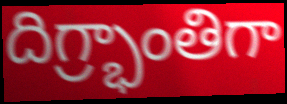
దిగ్ర్భాంతిగా